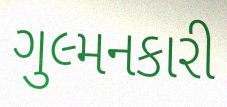
ગુલ્મનકારી